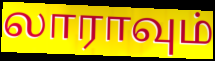
லாராவும்